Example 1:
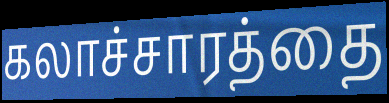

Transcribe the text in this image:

கலாச்சாரத்தை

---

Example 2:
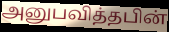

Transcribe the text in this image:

அனுபவித்தபின்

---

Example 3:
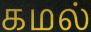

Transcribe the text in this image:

கமல்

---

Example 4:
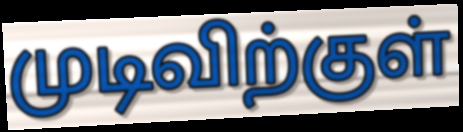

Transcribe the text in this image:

முடிவிற்குள்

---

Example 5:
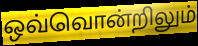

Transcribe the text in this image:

ஒவ்வொன்றிலும்